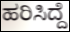
ಹರಿಸಿದ್ದೆ